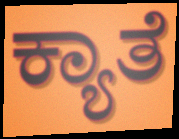
ಕ್ಯಾತೆ